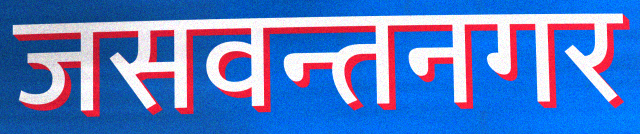
जसवन्तनगर